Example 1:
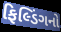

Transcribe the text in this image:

ફિલ્ડિંગનો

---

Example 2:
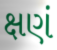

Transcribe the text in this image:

ક્ષણં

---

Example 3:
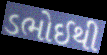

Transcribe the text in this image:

ડભોઈથી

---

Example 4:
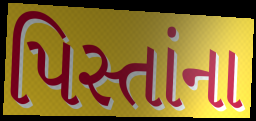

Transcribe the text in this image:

પિસ્તાંના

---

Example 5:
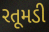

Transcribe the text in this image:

રતૂમડી